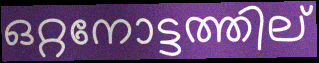
ഒറ്റനോട്ടത്തില്